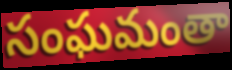
సంఘమంతా